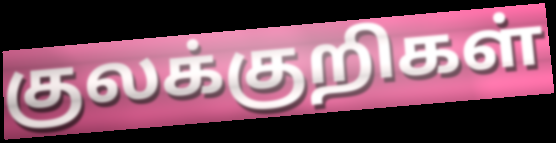
குலக்குறிகள்